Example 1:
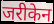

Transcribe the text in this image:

जरीकेन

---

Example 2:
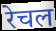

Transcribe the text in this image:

रेचल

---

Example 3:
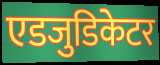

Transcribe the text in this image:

एडजुडिकेटर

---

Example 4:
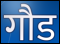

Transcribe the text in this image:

गौड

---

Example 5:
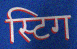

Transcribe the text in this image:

स्टिग